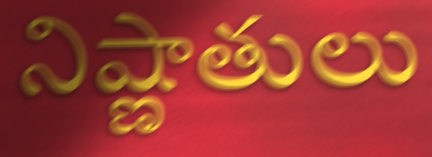
నిష్ణాతులు